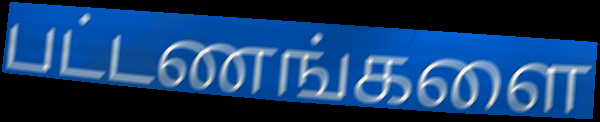
பட்டணங்களை